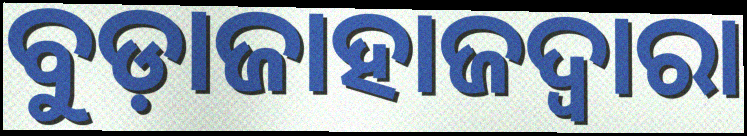
ବୁଡ଼ାଜାହାଜଦ୍ୱାରା